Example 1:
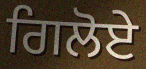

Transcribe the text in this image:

ਗਿਲੋਏ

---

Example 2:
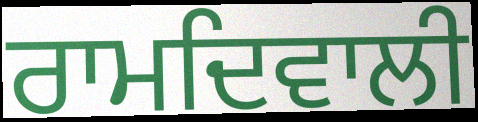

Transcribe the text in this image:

ਰਾਮਦਿਵਾਲੀ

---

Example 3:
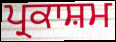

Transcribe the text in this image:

ਪ੍ਰਕਾਸ਼ਮ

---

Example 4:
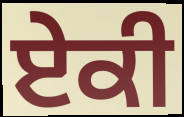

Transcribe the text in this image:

ਏਕੀ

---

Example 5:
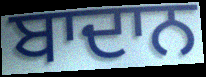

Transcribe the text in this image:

ਬਾਦਾਨ